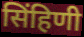
सिंहिणी